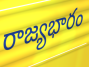
రాజ్యభారం